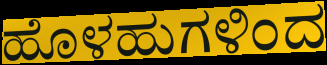
ಹೊಳಹುಗಳಿಂದ